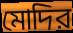
মোদির